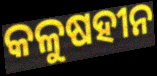
କଳୁଷହୀନ